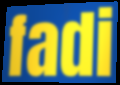
fadi